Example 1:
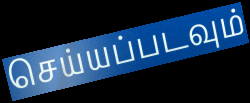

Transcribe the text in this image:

செய்யப்படவும்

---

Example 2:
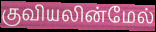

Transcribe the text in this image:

குவியலின்மேல்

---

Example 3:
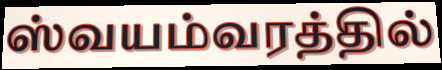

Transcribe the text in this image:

ஸ்வயம்வரத்தில்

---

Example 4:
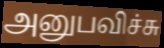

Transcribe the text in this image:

அனுபவிச்சு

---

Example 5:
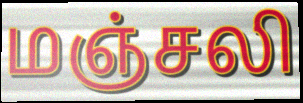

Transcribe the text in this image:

மஞ்சலி